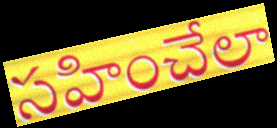
సహించేలా